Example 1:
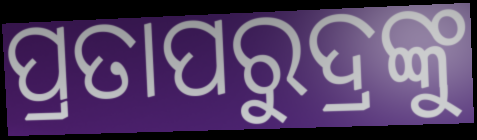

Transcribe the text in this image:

ପ୍ରତାପରୁଦ୍ରଙ୍କୁ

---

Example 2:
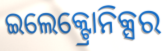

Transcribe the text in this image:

ଇଲେକ୍ଟ୍ରୋନିକ୍ସର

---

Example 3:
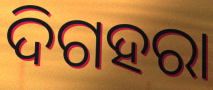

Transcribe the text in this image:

ଦିଗହରା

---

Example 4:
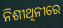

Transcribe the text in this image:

ନିଶୀଥିନୀରେ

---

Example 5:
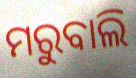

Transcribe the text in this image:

ମରୁବାଲି